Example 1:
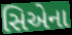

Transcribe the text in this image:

સિએના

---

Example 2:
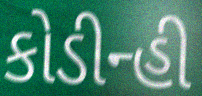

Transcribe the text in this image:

કોડીન્હી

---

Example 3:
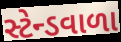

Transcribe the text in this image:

સ્ટેન્ડવાળા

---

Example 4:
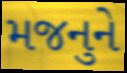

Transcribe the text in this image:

મજનુને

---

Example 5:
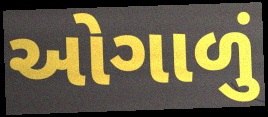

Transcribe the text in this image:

ઓગાળું